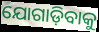
ଯୋଗାଡ଼ିବାକୁ